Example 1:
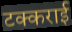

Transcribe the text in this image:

टक्कराई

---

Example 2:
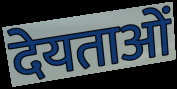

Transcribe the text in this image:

देयताओं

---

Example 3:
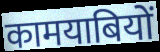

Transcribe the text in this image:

कामयाबियों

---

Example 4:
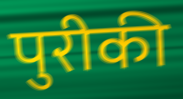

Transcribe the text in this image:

पुरीकी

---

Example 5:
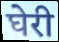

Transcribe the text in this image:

घेरी